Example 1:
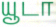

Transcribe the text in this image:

யூடா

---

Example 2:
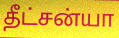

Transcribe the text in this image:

தீட்சன்யா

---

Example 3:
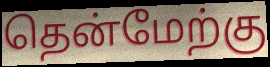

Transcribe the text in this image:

தென்மேற்கு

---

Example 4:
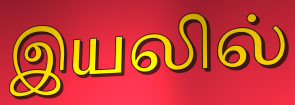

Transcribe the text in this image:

இயலில்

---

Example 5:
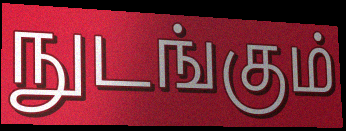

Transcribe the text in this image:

நுடங்கும்